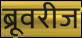
ब्रूवरीज